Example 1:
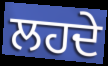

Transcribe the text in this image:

ਲਹਦੇ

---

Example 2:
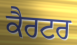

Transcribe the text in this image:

ਕੈਰਟਰ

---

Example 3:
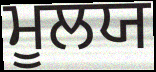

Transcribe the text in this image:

ਮੂਲਯ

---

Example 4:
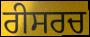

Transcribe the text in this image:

ਰੀਸਰਚ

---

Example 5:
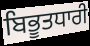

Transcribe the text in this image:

ਬਿਭੂਤਧਾਰੀ